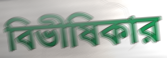
বিভীষিকার